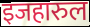
इजहारुल